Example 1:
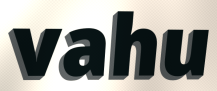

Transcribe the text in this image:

vahu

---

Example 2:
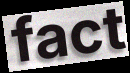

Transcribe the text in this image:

fact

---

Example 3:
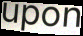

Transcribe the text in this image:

upon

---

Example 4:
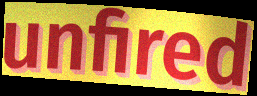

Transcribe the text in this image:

unfired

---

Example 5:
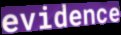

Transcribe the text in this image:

evidence